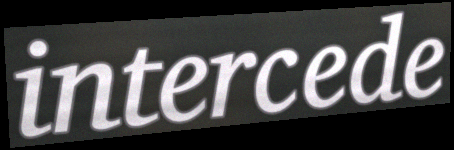
intercede